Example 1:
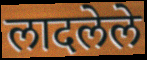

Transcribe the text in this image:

लादलेले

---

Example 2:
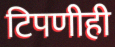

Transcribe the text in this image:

टिपणीही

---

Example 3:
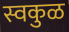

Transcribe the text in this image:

स्वकुळ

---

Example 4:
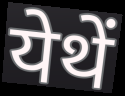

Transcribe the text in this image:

येथें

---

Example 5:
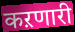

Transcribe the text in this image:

कऱणारी